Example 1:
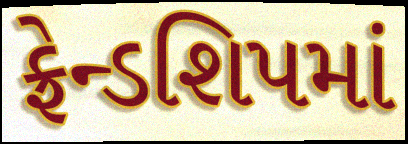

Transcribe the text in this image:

ફ્રેન્ડશિપમાં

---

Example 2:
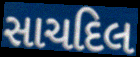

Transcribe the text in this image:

સાચદિલ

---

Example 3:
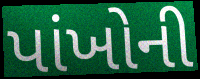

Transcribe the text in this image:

પાંખોની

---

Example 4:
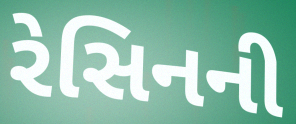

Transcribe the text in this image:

રેસિનની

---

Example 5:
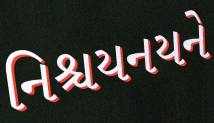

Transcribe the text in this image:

નિશ્ચયનયને